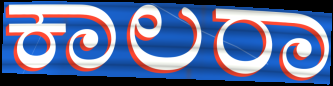
ಕಾಲರಾ